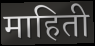
माहिती